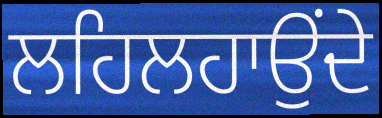
ਲਹਿਲਹਾਉਂਦੇ